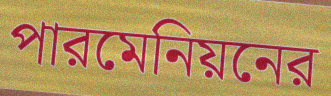
পারমেনিয়নের